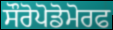
ਸੌਰੋਪੋਡੋਮੋਰਫ